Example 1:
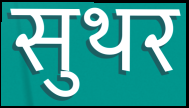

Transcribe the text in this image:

सुथर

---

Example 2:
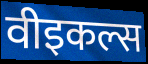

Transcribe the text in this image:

वीइकल्स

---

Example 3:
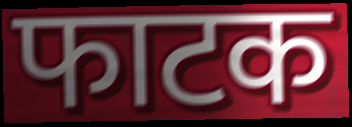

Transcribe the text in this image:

फाटक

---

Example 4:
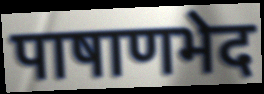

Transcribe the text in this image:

पाषाणभेद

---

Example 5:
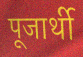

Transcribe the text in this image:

पूजार्थी